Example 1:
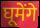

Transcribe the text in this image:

घूमेंगे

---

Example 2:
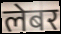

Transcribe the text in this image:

लेबर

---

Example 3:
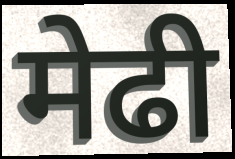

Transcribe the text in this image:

मेढी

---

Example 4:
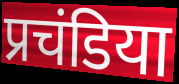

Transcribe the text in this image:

प्रचंडिया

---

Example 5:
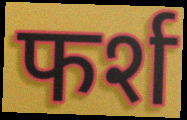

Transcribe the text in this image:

फर्श